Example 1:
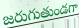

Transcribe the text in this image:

జరుగుతుండగా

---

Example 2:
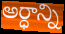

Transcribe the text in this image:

అర్ధాన్ని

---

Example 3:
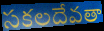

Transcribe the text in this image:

సకలదేవతా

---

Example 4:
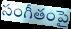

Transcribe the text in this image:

సంగీతంపై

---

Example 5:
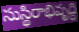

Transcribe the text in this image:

సుస్థిరాభివృద్ధి